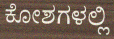
ಕೋಶಗಳಲ್ಲಿ